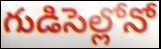
గుడిసెల్లోనో